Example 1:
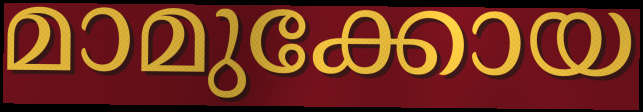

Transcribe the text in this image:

മാമുക്കോയ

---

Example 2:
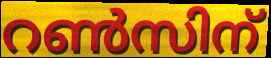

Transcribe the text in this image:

റൺസിന്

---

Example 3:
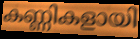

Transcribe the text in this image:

കണ്ണികളായി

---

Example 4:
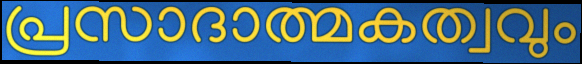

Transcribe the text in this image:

പ്രസാദാത്മകത്വവും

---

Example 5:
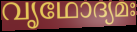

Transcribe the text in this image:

വൃഥോദ്യമഃ